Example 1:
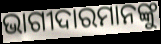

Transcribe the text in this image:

ଭାଗୀଦାରମାନଙ୍କୁ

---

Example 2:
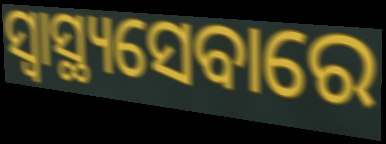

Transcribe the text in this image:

ସ୍ୱାସ୍ଥ୍ୟସେବାରେ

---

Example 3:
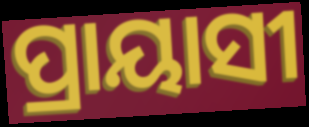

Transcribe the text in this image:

ପ୍ରାୟାସୀ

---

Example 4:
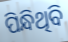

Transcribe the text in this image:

ପିନ୍ଧିଥିବି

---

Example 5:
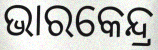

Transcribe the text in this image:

ଭାରକେନ୍ଦ୍ର